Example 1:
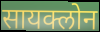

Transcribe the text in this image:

सायक्लोन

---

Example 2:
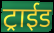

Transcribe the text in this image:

ट्राईड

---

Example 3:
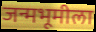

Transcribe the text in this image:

जन्मभूमीला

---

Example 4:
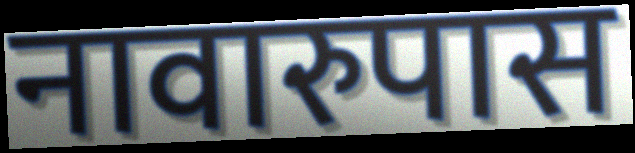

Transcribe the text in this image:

नावारुपास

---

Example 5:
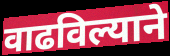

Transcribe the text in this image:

वाढविल्याने